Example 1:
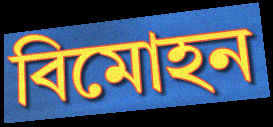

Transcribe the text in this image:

বিমোহন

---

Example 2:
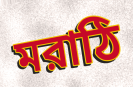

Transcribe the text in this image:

মরাঠি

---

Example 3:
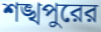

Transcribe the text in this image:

শঙ্খপুরের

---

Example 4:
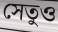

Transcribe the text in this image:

সেতুও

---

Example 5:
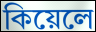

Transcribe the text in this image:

কিয়েলে